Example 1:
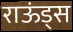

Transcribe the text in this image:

राऊंड्स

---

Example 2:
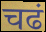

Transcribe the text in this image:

चढं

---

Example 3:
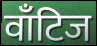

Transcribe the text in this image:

वाँटिज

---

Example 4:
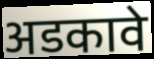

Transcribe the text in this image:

अडकावे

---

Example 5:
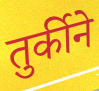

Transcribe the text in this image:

तुर्कीने